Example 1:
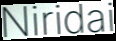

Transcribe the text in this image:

Niridai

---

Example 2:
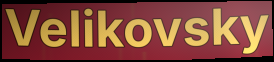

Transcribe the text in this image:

Velikovsky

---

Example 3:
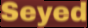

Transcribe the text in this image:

Seyed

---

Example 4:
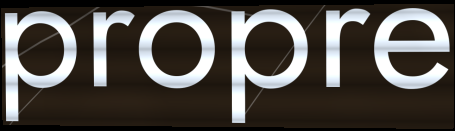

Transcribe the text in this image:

propre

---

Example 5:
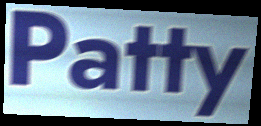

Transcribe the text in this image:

Patty